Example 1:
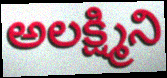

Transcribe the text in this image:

అలక్ష్మిని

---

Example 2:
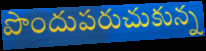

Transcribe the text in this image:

పొందుపరుచుకున్న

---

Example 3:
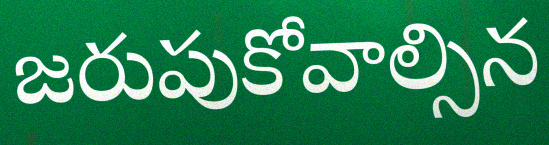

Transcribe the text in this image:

జరుపుకోవాల్సిన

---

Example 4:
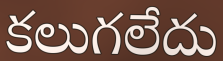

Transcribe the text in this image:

కలుగలేదు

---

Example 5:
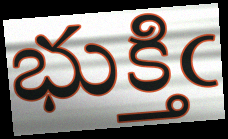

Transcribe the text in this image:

భుక్తిఁ